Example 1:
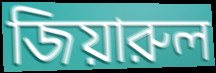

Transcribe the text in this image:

জিয়ারুল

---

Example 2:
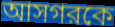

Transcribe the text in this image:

আসগরকে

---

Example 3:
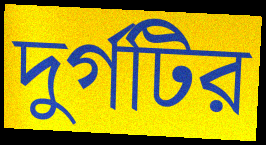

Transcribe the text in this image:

দুর্গটির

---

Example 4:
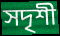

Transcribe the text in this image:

সদৃশী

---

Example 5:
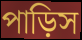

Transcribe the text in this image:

পাড়িস